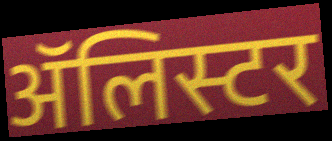
ॲलिस्टर